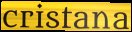
cristana